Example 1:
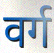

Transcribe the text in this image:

वर्ग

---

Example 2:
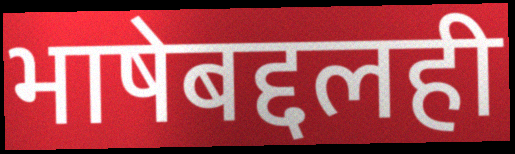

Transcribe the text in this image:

भाषेबद्दलही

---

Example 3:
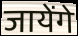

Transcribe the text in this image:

जायेंगे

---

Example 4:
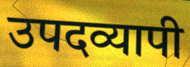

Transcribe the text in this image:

उपदव्यापी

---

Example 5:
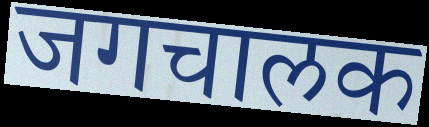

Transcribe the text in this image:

जगचालक